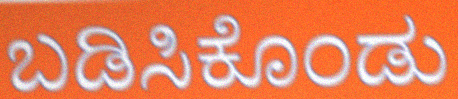
ಬಡಿಸಿಕೊಂಡು